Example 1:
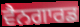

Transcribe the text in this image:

ਵੈਨਗਾਰਡ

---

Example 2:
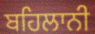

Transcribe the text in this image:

ਬਹਿਲਾਨੀ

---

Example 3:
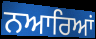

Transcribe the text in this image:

ਨਆਰਿਆਂ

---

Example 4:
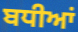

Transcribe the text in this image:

ਬਧੀਆਂ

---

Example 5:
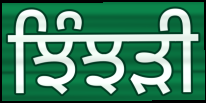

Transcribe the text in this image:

ਝਿੰਝੜੀ